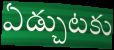
ఏడ్చుటకు